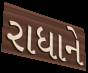
રાધાને